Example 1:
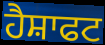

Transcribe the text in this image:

ਹੈਸ਼ਾਫਟ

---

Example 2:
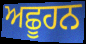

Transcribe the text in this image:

ਅਛੂਹਨ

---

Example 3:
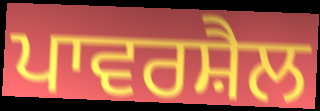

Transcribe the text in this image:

ਪਾਵਰਸ਼ੈਲ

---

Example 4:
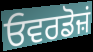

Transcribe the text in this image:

ਓਵਰਡੋਜ਼ਂ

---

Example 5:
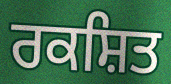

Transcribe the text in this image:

ਰਕਸ਼ਿਤ